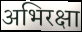
अभिरक्षा